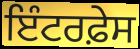
ਇੰਟਰਫ਼ੇਸ